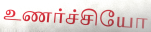
உணர்ச்சியோ